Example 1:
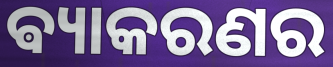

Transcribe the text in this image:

ଵ୍ୟାକରଣର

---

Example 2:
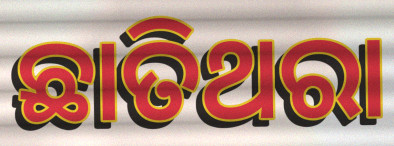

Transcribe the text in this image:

ଛାତିଥରା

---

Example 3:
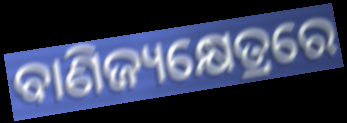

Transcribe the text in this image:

ବାଣିଜ୍ୟକ୍ଷେତ୍ରରେ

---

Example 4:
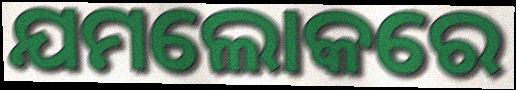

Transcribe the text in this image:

ଯମଲୋକରେ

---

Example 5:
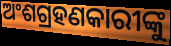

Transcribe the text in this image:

ଅଂଶଗ୍ରହଣକାରୀଙ୍କୁ